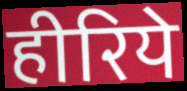
हीरिये